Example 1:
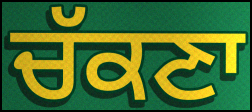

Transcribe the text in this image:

ਚੱਕਣਾ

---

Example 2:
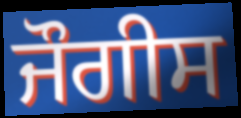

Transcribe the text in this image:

ਜੌਗੀਸ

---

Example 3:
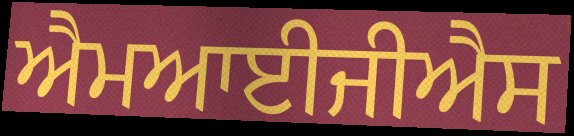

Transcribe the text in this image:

ਐਮਆਈਜੀਐਸ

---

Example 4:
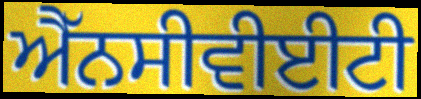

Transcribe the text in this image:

ਐੱਨਸੀਵੀਈਟੀ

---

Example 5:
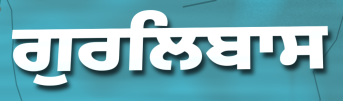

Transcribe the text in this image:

ਗੁਰਲਿਬਾਸ